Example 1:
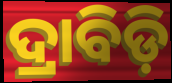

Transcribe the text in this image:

ଦ୍ରାବିଡ଼ି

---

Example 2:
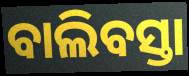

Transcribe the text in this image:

ବାଲିବସ୍ତା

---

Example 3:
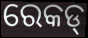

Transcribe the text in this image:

ରେକଡ୍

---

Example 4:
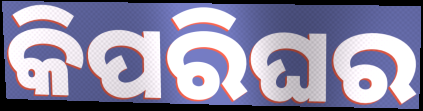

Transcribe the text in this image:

କିପରିଘର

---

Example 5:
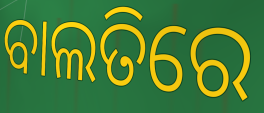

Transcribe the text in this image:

ବାଲତିରେ